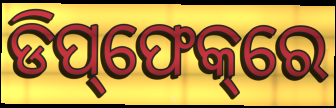
ଡିପ୍‌ଫେକ୍‌ରେ